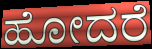
ಹೋದರೆ